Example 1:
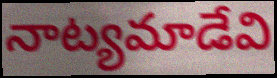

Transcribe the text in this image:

నాట్యమాడేవి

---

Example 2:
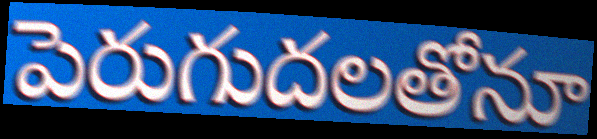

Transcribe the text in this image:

పెరుగుదలతోనూ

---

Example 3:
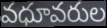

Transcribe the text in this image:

వధూవరుల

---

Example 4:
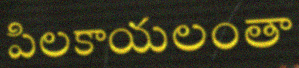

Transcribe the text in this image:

పిలకాయలంతా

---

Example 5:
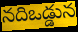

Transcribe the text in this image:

నదిఒడ్డున